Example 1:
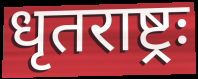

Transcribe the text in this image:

धृतराष्ट्रः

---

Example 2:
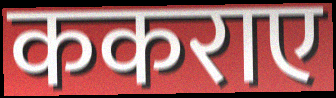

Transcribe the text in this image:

ककराए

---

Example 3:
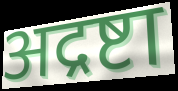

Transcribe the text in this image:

अद्रष्टा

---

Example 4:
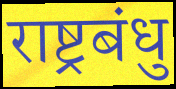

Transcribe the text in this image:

राष्ट्रबंधु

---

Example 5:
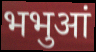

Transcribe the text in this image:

भभुआं